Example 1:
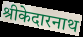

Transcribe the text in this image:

श्रीकेदारनाथ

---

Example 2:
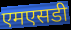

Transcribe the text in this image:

एमएसडी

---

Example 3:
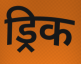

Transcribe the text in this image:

ड्रिक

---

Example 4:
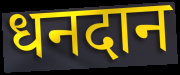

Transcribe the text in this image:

धनदान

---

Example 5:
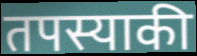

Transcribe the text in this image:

तपस्याकी